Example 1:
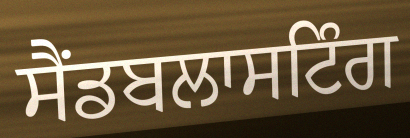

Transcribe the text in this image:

ਸੈਂਡਬਲਾਸਟਿੰਗ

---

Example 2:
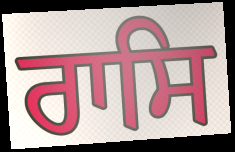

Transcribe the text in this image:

ਰਾਸਿ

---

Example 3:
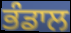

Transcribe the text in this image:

ਭੰਡਾਲ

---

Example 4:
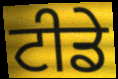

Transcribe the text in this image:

ਟੀਡੇ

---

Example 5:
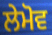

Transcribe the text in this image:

ਲੇਮੋਵ